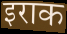
इराक